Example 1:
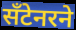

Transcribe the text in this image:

सँटेनरने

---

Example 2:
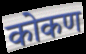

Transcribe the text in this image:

कोकण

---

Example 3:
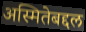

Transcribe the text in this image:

अस्मितेबद्दल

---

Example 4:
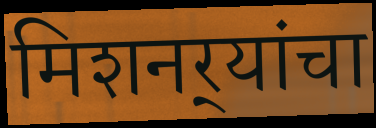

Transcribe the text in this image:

मिशनर्यांचा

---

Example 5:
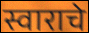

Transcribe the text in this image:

स्वाराचे